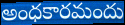
అంధకారమందు